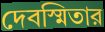
দেবস্মিতার